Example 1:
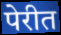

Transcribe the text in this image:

पेरीत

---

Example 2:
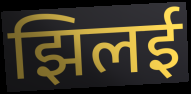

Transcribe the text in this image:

झिलई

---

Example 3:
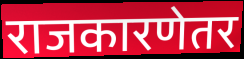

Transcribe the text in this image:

राजकारणेतर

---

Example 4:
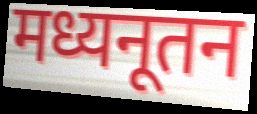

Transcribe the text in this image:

मध्यनूतन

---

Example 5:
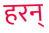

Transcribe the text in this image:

हरन्